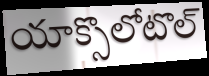
యాక్సొలోటొల్